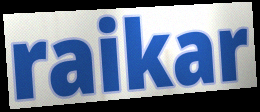
raikar